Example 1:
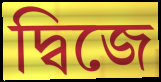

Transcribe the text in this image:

দ্বিজে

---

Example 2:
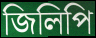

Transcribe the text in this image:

জিলিপি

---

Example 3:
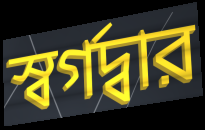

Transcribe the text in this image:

স্বর্গদ্বার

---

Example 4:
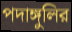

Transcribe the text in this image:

পদাঙ্গুলির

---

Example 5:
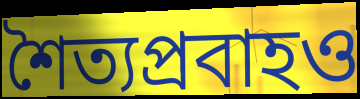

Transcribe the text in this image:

শৈত্যপ্রবাহও